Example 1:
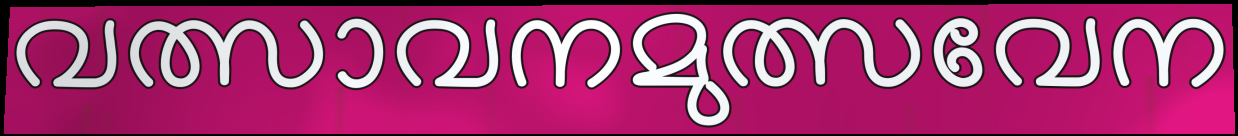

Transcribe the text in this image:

വത്സാവനമുത്സവേന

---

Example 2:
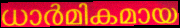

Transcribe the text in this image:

ധാർമികമായ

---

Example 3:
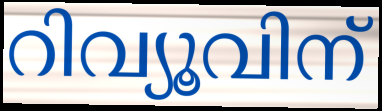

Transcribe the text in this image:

റിവ്യൂവിന്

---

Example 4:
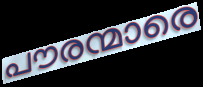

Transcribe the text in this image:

പൗരന്മാരെ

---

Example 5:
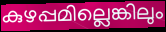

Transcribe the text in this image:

കുഴപ്പമില്ലെങ്കിലും